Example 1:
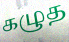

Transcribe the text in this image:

கழுத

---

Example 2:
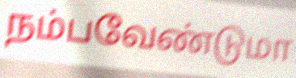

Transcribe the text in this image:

நம்பவேண்டுமா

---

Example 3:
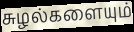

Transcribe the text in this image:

சுழல்களையும்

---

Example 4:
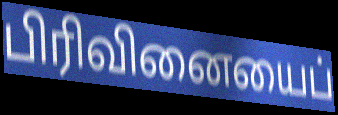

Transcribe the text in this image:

பிரிவினையைப்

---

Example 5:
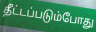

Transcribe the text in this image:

தீட்டப்படும்போது